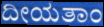
ದೀಯತಾಂ